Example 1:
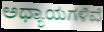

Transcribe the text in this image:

ಅಧ್ಯಾಯಗಳಿವೆ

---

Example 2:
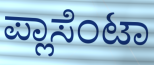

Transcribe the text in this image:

ಪ್ಲಾಸೆಂಟಾ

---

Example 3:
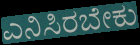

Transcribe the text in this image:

ಎನಿಸಿರಬೇಕು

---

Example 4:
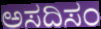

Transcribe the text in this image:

ಅಸದಿಸಂ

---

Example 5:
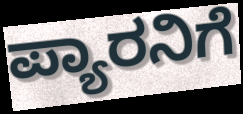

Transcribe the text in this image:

ಪ್ಯಾರನಿಗೆ